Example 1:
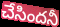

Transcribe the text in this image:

చేసిందనీ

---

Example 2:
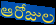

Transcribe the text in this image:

ఆరోజుల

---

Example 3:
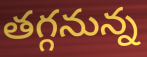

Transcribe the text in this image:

తగ్గనున్న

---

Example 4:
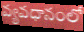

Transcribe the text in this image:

వ్యవధానంలో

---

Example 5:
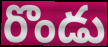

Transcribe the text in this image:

రొండు